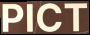
PICT